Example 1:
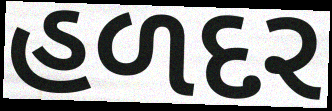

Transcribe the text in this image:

હળદર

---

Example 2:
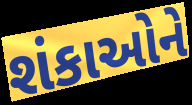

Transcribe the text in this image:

શંકાઓને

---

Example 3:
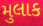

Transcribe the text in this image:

મુલાક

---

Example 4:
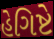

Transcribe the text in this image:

હેગિષ્ટે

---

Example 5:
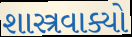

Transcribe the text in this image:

શાસ્ત્રવાક્યો